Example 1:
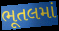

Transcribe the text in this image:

ભૂતલમાં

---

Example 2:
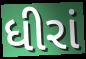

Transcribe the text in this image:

ધીરાં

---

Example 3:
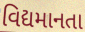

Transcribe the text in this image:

વિદ્યમાનતા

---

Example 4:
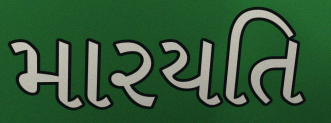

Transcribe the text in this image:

મારયતિ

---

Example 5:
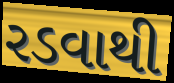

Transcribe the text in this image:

રડવાથી